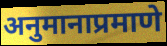
अनुमानाप्रमाणे